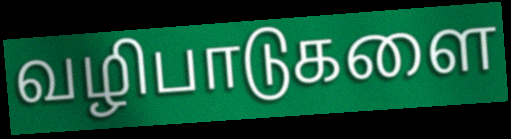
வழிபாடுகளை